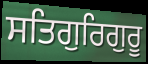
ਸਤਿਗੁਰਿਗੁਰੂ